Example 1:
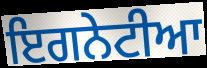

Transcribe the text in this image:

ਇਗਨੇਟੀਆ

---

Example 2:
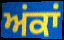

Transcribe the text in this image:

ਅਂਕਾਂ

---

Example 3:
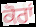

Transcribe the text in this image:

ਕੋਰਾਂ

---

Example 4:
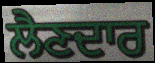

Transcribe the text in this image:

ਲੈਣਦਾਰ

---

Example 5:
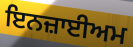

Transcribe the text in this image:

ਇਨਜ਼ਾਈਅਮ